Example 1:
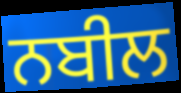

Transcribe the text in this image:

ਨਬੀਲ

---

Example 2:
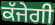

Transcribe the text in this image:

ਕੱਜੇਗੀ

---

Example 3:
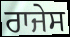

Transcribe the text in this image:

ਰਾਜੇਸ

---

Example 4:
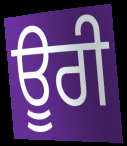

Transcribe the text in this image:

ਊਰੀ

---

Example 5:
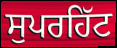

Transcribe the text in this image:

ਸੁਪਰਹਿੱਟ